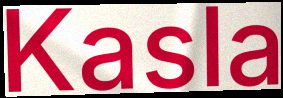
Kasla